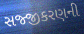
સજ્જીકરણની